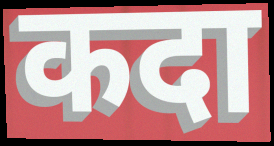
कदा